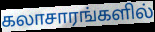
கலாசாரங்களில்